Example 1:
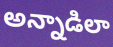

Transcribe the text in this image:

అన్నాడిలా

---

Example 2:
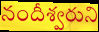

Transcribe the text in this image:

నందీశ్వరుని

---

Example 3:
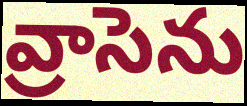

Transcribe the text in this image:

వ్రాసెను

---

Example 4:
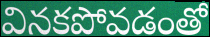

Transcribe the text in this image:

వినకపోవడంతో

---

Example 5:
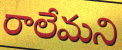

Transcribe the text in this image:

రాలేమని